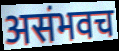
असंभवच